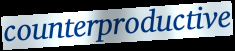
counterproductive